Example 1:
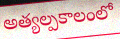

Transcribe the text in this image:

అత్యల్పకాలంలో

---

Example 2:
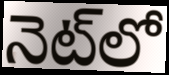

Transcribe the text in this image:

నెట్‌లో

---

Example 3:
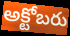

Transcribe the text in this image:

అక్టోబరు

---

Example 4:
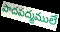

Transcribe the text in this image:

పాదపద్మములే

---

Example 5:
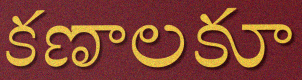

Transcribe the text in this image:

కణాలకూ